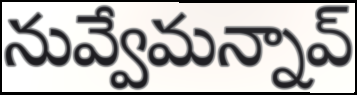
నువ్వేమన్నావ్